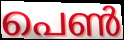
പെൺ